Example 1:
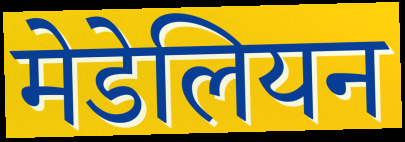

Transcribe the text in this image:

मेडेलियन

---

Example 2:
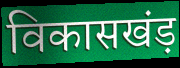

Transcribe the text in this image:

विकासखंड़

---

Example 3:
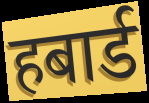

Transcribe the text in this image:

हबार्ड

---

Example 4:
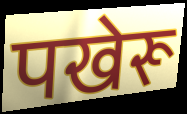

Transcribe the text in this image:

पखेरू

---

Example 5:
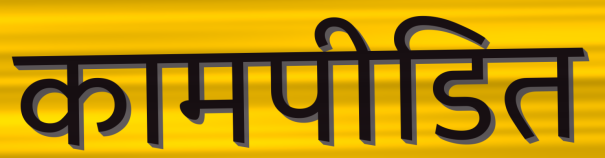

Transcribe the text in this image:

कामपीडित